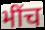
भींच